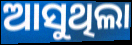
ଆସୁଥିଲା